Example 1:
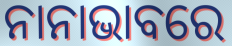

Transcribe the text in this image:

ନାନାଭାବରେ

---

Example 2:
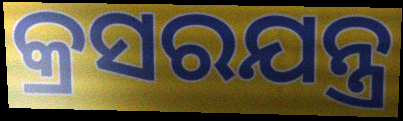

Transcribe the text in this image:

କ୍ରସରଯନ୍ତ୍ର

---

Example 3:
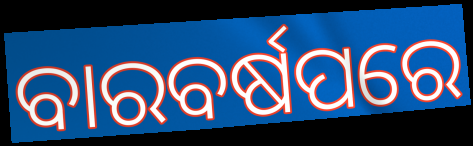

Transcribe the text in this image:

ବାରବର୍ଷପରେ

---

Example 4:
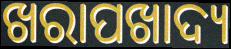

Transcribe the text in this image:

ଖରାପଖାଦ୍ୟ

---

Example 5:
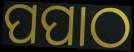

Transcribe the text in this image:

ପପାଠ